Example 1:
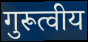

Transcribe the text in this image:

गुरूत्वीय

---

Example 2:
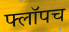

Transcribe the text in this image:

फ्लॉपच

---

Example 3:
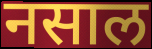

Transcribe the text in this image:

नसाल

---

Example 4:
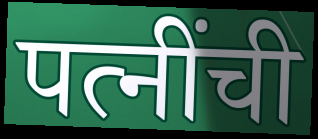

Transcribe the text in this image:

पत्नींची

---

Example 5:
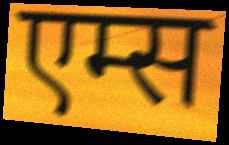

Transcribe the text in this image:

एम्स